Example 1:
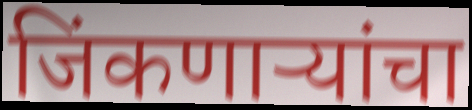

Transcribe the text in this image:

जिंकणाऱ्यांचा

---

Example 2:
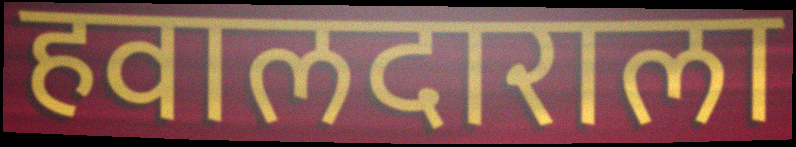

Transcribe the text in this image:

हवालदाराला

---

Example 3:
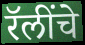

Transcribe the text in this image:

रॅलींचे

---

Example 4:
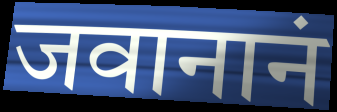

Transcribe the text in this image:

जवानानं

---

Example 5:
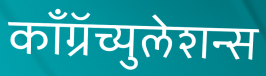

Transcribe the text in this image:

काँग्रॅच्युलेशन्स